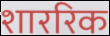
शाररिक